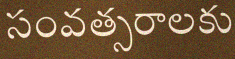
సంవత్సరాలకు